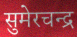
सुमेरचन्द्र